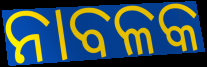
ନାବଳକ